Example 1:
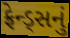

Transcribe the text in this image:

ફ્રેન્ડ્સનું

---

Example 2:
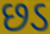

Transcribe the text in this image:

છડ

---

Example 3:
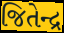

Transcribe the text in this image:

જિતેન્દ્ર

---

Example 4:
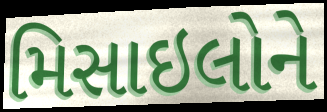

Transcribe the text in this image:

મિસાઇલોને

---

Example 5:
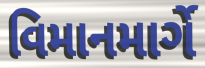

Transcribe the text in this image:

વિમાનમાર્ગે